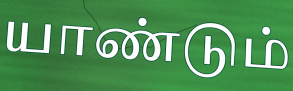
யாண்டும்